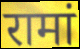
रामां